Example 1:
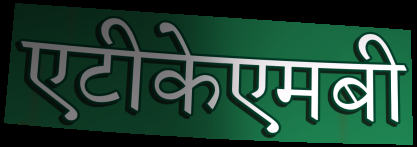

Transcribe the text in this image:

एटीकेएमबी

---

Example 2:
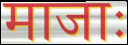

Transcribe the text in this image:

माजाः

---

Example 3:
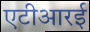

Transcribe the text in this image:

एटीआरई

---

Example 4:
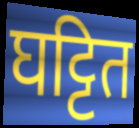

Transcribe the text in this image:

घट्टित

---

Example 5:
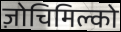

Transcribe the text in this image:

ज़ोचिमिल्को